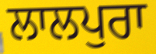
ਲਾਲਪੁਰਾ